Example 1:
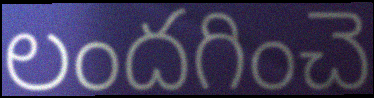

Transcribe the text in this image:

లందగించె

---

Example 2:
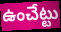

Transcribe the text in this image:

ఉంచేట్టు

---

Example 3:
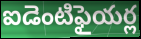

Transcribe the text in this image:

ఐడెంటిఫైయర్ల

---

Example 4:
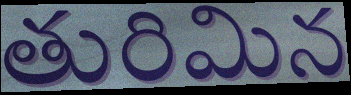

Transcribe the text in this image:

తురిమిన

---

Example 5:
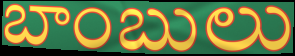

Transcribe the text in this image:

బాంబులు